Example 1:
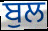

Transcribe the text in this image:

ਬੁਲ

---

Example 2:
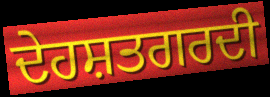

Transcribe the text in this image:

ਦੇਹਸ਼ਤਗਰਦੀ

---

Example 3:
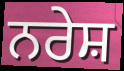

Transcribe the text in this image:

ਨਰੇਸ਼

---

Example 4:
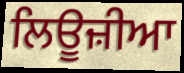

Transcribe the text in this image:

ਲਿਊਜ਼ੀਆ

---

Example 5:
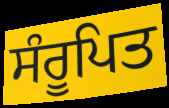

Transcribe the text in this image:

ਸੰਰੂਪਿਤ